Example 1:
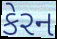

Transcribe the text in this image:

કેરન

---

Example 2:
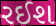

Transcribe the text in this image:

રઈશ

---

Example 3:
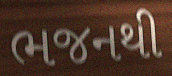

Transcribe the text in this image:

ભજનથી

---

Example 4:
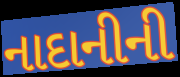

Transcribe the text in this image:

નાદાનીની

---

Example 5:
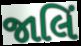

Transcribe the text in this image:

જાલિં